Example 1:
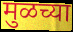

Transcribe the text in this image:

मुळच्या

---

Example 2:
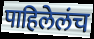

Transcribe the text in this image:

पाहिलेलंच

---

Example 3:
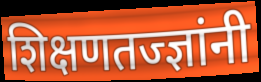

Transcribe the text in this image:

शिक्षणतज्ज्ञांनी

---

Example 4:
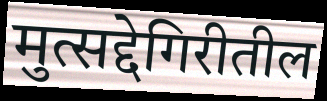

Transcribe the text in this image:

मुत्सद्देगिरीतील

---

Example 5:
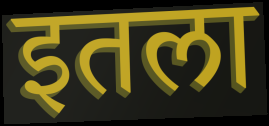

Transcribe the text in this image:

इतला